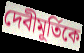
দেবীমূর্তিকে